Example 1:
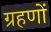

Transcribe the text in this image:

ग्रहणों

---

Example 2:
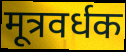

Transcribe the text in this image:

मूत्रवर्धक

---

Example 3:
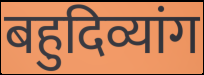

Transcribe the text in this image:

बहुदिव्यांग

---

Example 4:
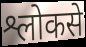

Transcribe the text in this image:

श्लोकसे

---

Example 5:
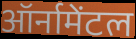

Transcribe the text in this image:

ऑर्नामेंटल